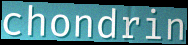
chondrin